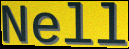
Nell